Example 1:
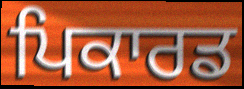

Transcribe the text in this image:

ਪਿਕਾਰਡ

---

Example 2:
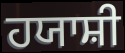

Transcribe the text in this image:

ਹਯਾਸ਼ੀ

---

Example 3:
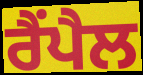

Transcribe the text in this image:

ਰੈਂਪੈਲ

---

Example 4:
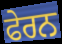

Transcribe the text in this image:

ਫੇਰਨ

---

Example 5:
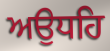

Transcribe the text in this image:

ਅਉਧਹਿ